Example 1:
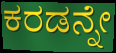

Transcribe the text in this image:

ಕರಡನ್ನೇ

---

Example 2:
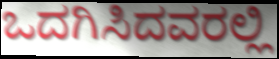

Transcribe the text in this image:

ಒದಗಿಸಿದವರಲ್ಲಿ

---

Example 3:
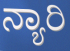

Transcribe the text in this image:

ನ್ಯಾರಿ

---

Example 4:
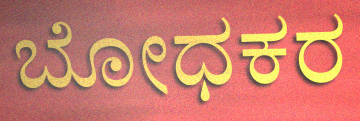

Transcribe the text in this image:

ಬೋಧಕರ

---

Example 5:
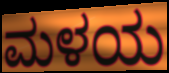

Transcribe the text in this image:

ಮಳಯ